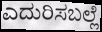
ಎದುರಿಸಬಲ್ಲೆ